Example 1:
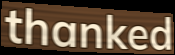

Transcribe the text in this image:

thanked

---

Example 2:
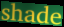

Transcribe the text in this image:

shade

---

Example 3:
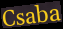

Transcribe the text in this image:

Csaba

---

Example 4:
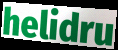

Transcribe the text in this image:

helidru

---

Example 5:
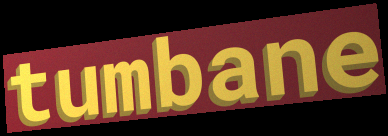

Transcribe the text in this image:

tumbane